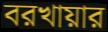
বরখায়ার